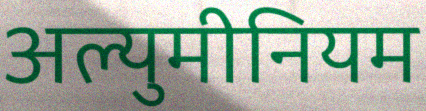
अल्युमीनियम